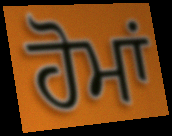
ਹੋਮਾਂ